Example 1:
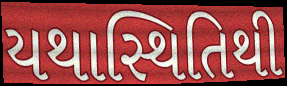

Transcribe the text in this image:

યથાસ્થિતિથી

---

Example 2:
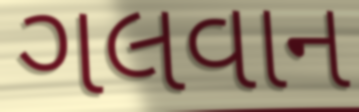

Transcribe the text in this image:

ગલવાન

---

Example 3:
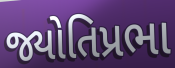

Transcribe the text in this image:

જ્યોતિપ્રભા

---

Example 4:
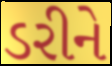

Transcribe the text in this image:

ડરીને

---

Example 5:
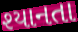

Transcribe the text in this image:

શ્યાનતા